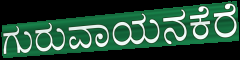
ಗುರುವಾಯನಕೆರೆ